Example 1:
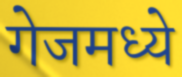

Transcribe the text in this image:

गेजमध्ये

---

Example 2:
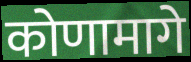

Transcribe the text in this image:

कोणामागे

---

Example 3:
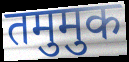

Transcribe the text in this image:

तमुमुक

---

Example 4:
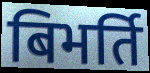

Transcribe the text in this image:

बिभर्ति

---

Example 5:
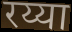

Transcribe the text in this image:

रय्या